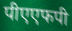
पीएएफपी